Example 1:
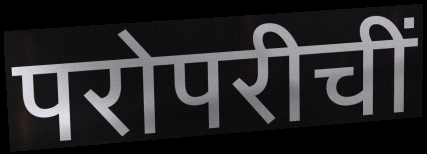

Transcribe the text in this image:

परोपरीचीं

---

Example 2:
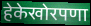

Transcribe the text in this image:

हेकेखोरपणा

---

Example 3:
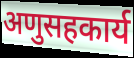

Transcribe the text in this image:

अणुसहकार्य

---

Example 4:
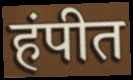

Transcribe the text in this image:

हंपीत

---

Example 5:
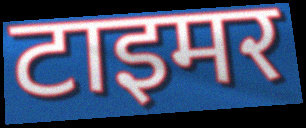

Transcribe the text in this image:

टाइमर